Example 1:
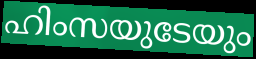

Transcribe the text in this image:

ഹിംസയുടേയും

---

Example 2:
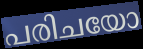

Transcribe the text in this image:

പരിചയോ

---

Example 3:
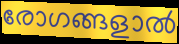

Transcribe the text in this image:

രോഗങ്ങളാൽ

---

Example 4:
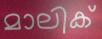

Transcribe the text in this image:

മാലിക്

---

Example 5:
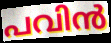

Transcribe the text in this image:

പവിൻ